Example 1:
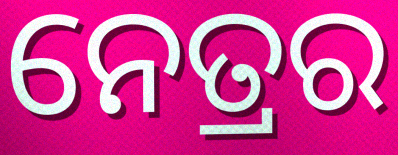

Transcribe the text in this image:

ନେତ୍ରର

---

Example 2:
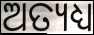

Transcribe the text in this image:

ଅତ୍ୟଧ୍ୟ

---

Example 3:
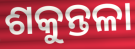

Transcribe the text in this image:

ଶକୁନ୍ତଳା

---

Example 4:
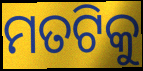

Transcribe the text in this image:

ମତଟିକୁ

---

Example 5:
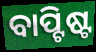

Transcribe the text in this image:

ବାପ୍ଟିଷ୍ଟ